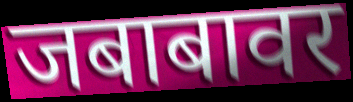
जबाबावर